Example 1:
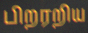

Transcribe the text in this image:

பிறரறிய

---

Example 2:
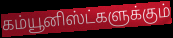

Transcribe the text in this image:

கம்யூனிஸ்ட்களுக்கும்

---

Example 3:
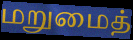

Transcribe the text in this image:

மறுமைத்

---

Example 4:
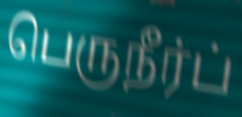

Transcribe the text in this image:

பெருநீர்ப்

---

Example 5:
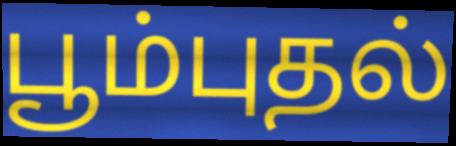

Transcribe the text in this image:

பூம்புதல்